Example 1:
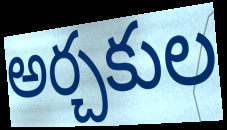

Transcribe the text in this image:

అర్చకుల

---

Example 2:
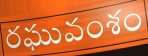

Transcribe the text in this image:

రఘువంశం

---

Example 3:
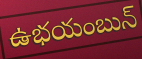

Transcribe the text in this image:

ఉభయంబున్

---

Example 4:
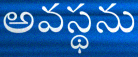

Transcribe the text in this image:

అవస్థను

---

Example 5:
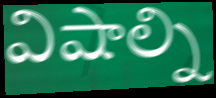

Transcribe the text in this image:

విషాల్ని